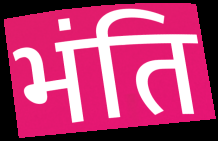
भंति